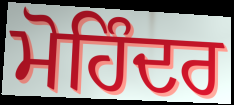
ਮੋਹਿੰਦਰ